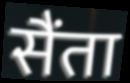
सैंता